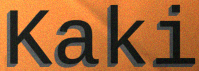
Kaki